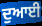
ਦੁਆਈ